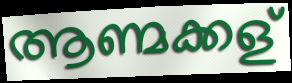
ആണ്മക്കള്